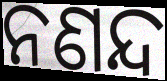
ନଣନ୍ଦ